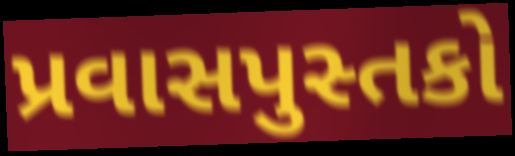
પ્રવાસપુસ્તકો